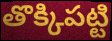
తొక్కిపట్టి